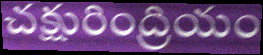
చక్షురింద్రియం